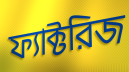
ফ্যাক্টরিজ